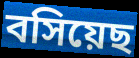
বসিয়েছ